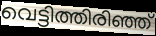
വെട്ടിത്തിരിഞ്ഞ്